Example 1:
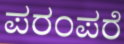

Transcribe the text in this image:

ಪರಂಪರೆ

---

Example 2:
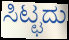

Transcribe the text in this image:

ಸಿಟ್ಟದು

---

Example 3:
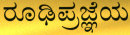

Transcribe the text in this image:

ರೂಢಿಪ್ರಜ್ಞೆಯ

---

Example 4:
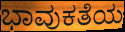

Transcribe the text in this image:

ಭಾವುಕತೆಯ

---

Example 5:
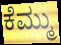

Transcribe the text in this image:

ಕೆಮ್ಮು